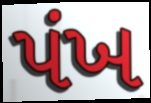
પંખ